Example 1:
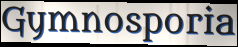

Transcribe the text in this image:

Gymnosporia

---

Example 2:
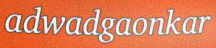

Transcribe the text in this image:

adwadgaonkar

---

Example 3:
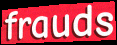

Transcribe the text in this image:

frauds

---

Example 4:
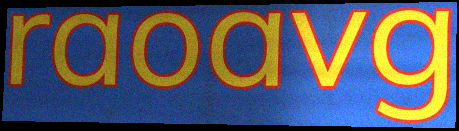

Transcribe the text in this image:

raoavg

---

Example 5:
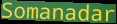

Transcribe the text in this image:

Somanadar